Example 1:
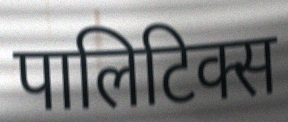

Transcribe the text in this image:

पालिटिक्स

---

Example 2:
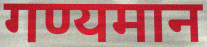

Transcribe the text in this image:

गण्यमान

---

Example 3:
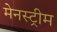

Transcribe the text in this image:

मेनस्‍ट्रीम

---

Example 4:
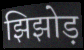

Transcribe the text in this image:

झिझोड़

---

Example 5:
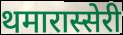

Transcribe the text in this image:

थमारास्सेरी